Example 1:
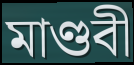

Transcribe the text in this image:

মাণ্ডবী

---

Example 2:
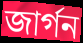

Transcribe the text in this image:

জার্গন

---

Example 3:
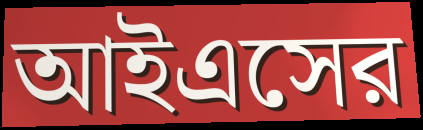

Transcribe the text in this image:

আইএসের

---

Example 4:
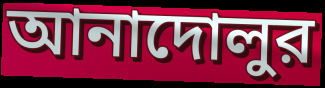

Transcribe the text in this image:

আনাদোলুর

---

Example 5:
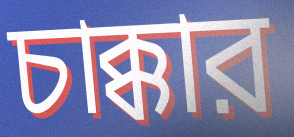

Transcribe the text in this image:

চাক্কার